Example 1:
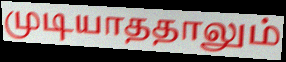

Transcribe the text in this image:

முடியாததாலும்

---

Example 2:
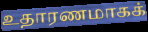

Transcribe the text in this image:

உதாரணமாகக்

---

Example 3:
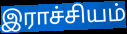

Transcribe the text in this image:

இராச்சியம்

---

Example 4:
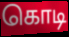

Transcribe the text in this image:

கொடி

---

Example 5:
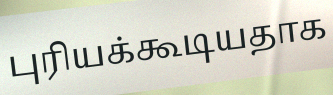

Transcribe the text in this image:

புரியக்கூடியதாக